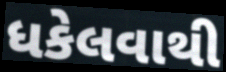
ધકેલવાથી